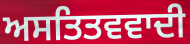
ਅਸਤਿਤਵਵਾਦੀ